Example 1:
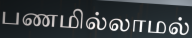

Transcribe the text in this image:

பணமில்லாமல்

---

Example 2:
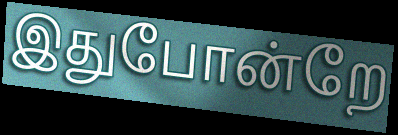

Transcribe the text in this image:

இதுபோன்றே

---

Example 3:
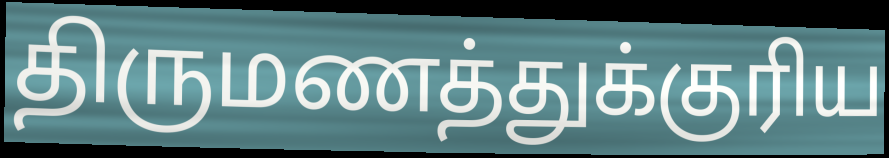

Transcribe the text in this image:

திருமணத்துக்குரிய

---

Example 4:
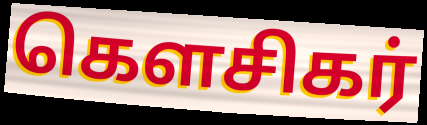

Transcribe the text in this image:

கௌசிகர்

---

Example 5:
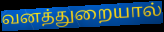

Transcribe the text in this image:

வனத்துறையால்